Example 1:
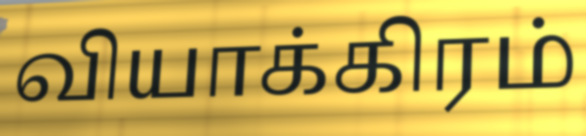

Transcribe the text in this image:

வியாக்கிரம்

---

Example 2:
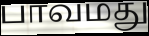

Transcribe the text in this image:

பாவமது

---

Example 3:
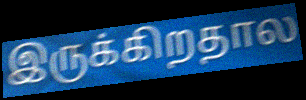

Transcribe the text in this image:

இருக்கிறதால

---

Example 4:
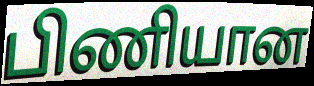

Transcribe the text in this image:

பிணியான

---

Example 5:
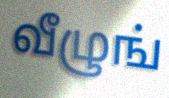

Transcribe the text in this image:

வீழுங்